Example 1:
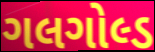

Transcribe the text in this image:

ગલગોલ્ડ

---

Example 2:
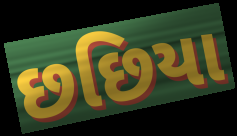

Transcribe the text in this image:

છછિયા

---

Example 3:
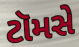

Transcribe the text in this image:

ટૉમસે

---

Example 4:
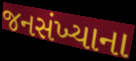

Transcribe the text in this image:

જનસંખ્યાના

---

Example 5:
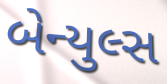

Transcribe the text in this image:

બેન્યુલ્સ